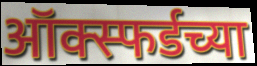
ऑक्स्फर्डच्या